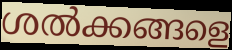
ശൽക്കങ്ങളെ